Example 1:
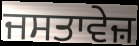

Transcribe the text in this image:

ਜਸਤਾਵੇਜ਼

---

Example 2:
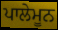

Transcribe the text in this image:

ਪਾਲੇਮੂਨ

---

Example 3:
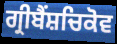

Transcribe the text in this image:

ਗ੍ਰੀਬੈਂਸ਼ਚਿਕੋਵ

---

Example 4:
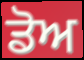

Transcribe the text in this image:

ਡੋਅ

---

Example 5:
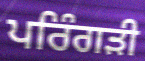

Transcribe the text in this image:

ਪਰਿੰਗੜੀ